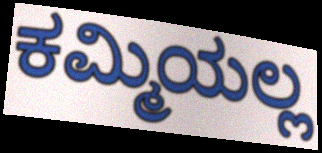
ಕಮ್ಮಿಯಲ್ಲ